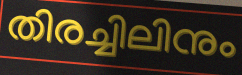
തിരച്ചിലിനും